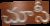
చూసీ